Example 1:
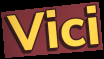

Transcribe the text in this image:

Vici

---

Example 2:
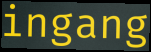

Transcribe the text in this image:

ingang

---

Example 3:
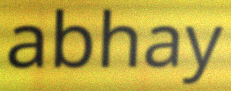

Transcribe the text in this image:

abhay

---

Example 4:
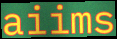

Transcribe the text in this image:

aiims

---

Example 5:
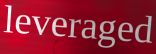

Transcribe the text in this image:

leveraged